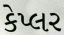
કેપ્લર